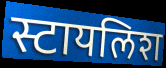
स्टायलिश